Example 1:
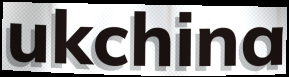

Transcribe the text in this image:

ukchina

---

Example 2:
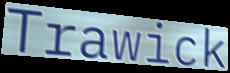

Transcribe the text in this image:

Trawick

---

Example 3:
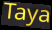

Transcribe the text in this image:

Taya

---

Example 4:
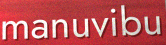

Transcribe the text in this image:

manuvibu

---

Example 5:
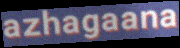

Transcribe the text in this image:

azhagaana